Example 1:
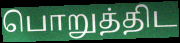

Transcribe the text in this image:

பொறுத்திட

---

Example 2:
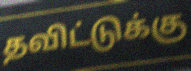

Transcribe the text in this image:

தவிட்டுக்கு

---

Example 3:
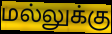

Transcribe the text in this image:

மல்லுக்கு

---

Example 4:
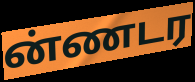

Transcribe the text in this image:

ன்ணடர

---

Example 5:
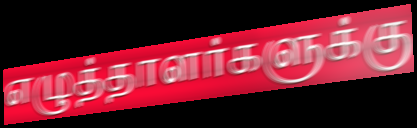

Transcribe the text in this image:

எழுத்தாளர்களுக்கு